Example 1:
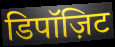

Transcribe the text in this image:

डिपॉज़िट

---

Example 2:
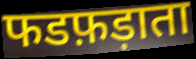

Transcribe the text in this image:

फडफ़ड़ाता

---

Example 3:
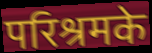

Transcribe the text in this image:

परिश्रमके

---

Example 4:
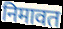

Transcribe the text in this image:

निमावत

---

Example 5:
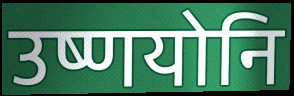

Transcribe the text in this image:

उष्णयोनि